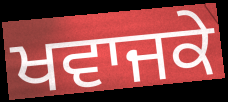
ਖਵਾਜਕੇ